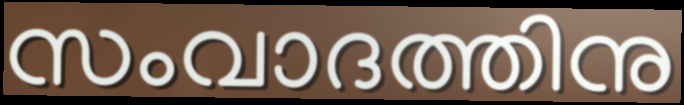
സംവാദത്തിനു